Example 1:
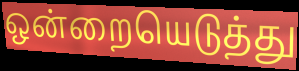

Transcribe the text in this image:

ஒன்றையெடுத்து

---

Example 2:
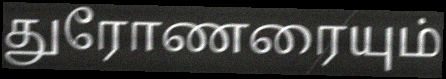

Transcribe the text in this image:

துரோணரையும்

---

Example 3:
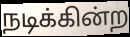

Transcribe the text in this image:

நடிக்கின்ற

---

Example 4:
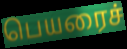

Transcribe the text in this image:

பெயரைச்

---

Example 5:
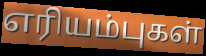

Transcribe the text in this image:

எரியம்புகள்